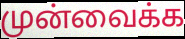
முன்வைக்க